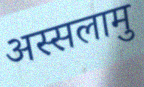
अस्सलामु